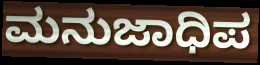
ಮನುಜಾಧಿಪ